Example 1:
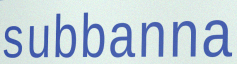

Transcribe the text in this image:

subbanna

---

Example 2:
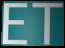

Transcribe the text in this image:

ET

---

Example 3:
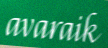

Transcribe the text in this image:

avaraik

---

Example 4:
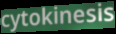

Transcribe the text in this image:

cytokinesis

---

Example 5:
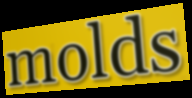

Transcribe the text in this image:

molds